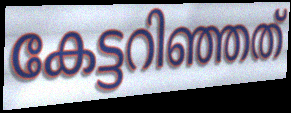
കേട്ടറിഞ്ഞത്